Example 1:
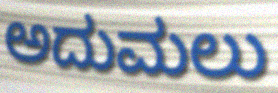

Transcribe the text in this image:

ಅದುಮಲು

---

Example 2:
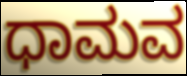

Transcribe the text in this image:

ಧಾಮವ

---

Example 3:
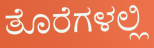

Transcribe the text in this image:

ತೊರೆಗಳಲ್ಲಿ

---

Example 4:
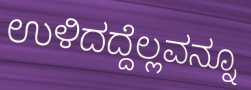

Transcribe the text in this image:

ಉಳಿದದ್ದೆಲ್ಲವನ್ನೂ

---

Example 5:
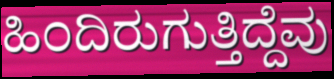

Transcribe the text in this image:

ಹಿಂದಿರುಗುತ್ತಿದ್ದೆವು